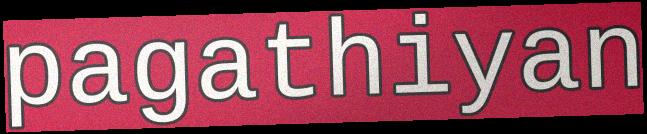
pagathiyan